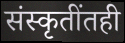
संस्कृतींतही